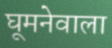
घूमनेवाला